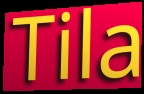
Tila